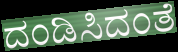
ದಂಡಿಸಿದಂತೆ